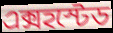
এক্সহস্টেড